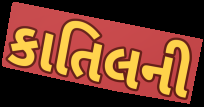
કાતિલની